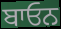
ਬਾਓਨ